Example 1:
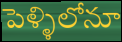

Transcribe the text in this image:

పెళ్ళిలోనూ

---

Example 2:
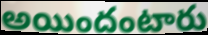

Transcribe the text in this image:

అయిందంటారు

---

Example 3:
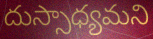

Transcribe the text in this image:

దుస్సాధ్యమని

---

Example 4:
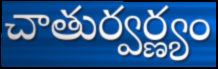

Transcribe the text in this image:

చాతుర్వర్ణ్యం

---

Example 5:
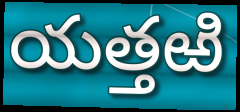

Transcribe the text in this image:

యత్తఱి